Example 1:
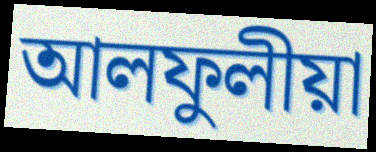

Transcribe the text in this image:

আলফুলীয়া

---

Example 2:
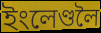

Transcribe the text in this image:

ইংলেণ্ডলৈ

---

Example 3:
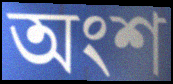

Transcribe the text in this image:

অংশ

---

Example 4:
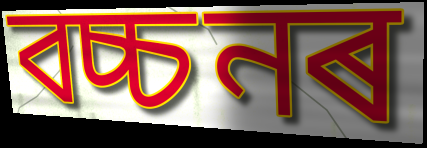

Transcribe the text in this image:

বচ্চনৰ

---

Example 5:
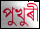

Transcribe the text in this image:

পুখুৰী